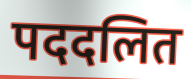
पददलित